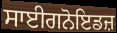
ਸਾਈਗਨੋਇਡਜ਼